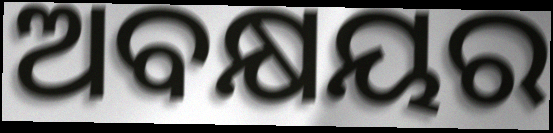
ଅବକ୍ଷୟର